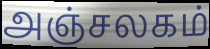
அஞ்சலகம்